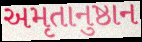
અમૃતાનુષ્ઠાન